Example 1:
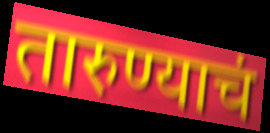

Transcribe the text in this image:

तारुण्याचं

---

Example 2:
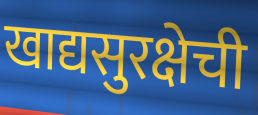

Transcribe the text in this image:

खाद्यसुरक्षेची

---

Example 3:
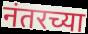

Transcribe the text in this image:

नंतरच्या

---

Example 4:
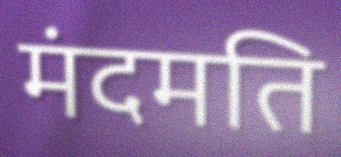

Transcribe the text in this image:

मंदमति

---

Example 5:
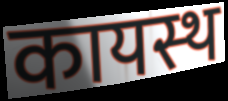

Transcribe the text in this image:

कायस्थ